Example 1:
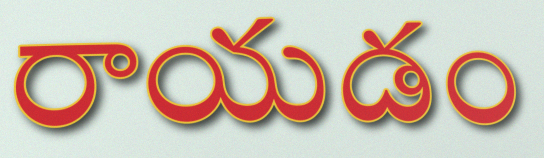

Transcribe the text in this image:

రాయడం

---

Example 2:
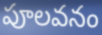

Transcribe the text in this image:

పూలవనం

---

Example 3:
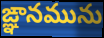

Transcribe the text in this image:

ఙ్ఞానమును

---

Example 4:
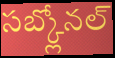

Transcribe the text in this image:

సబ్క్లోనల్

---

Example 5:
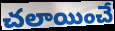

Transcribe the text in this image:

చలాయించే